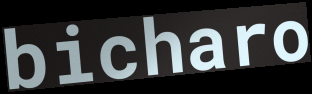
bicharo